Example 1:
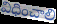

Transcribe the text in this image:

విధించాలి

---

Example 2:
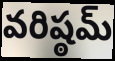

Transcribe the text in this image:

వరిష్ఠమ్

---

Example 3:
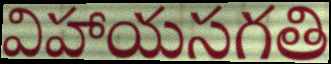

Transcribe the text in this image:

విహాయసగతి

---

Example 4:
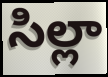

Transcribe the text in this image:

సిల్లా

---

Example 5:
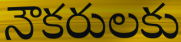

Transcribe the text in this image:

నౌకరులకు